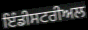
ਇੰਡੀਸਟਰੀਅਲ